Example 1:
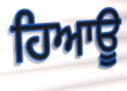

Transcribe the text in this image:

ਹਿਆਊ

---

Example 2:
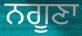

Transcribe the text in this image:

ਨਗੂਣਾ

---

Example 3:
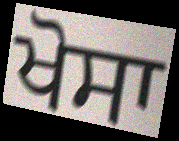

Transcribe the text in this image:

ਖੋਸਾ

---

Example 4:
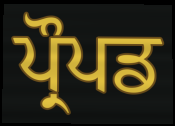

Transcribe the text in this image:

ਪ੍ਰੌਪਡ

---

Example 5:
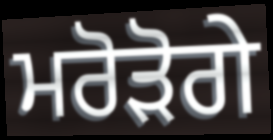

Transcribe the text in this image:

ਮਰੋੜੋਗੇ